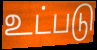
உட்படு